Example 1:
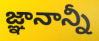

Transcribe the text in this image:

జ్ఞానాన్నీ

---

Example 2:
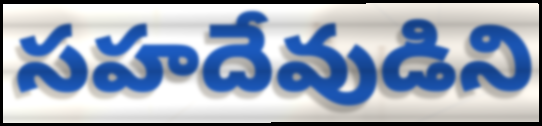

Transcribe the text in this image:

సహదేవుడిని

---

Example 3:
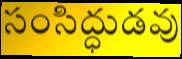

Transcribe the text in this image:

సంసిద్ధుడవు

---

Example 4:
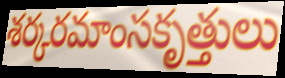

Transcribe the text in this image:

శర్కరమాంసకృత్తులు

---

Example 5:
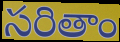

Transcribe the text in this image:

సరితాం